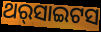
ଥର୍‌ସାଇଟସ